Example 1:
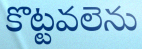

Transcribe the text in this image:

కొట్టవలెను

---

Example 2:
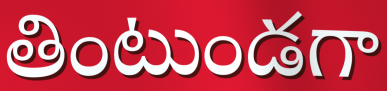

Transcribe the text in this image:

తింటుండగా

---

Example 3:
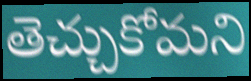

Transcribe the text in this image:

తెచ్చుకోమని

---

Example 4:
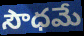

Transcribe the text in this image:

సౌధమే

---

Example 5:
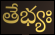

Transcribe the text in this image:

తేభ్యః